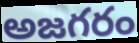
అజగరం